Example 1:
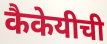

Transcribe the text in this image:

कैकेयीची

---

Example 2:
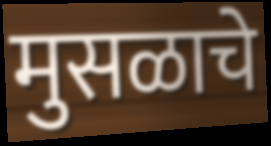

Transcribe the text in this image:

मुसळाचे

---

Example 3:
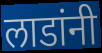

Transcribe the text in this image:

लाडांनी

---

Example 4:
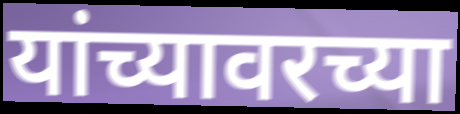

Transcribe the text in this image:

यांच्यावरच्या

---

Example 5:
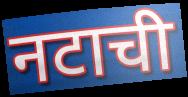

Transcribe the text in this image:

नटाची